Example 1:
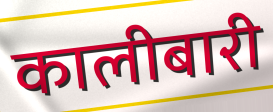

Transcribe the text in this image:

कालीबारी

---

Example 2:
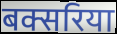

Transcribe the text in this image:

बक्सरिया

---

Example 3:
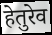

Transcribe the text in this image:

हेतुरेव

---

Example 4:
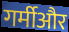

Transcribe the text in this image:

गर्मीऔर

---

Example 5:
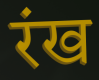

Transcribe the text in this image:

रंख